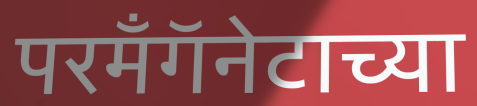
परमँगॅनेटाच्या